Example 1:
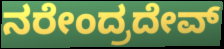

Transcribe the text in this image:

ನರೇಂದ್ರದೇವ್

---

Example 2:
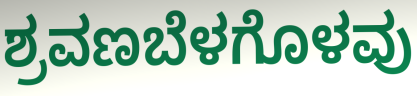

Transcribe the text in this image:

ಶ್ರವಣಬೆಳಗೊಳವು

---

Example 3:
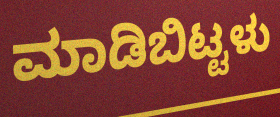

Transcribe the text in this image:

ಮಾಡಿಬಿಟ್ಟಳು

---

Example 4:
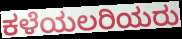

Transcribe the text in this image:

ಕಳೆಯಲರಿಯರು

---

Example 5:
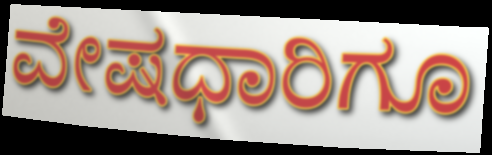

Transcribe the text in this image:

ವೇಷಧಾರಿಗೂ